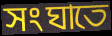
সংঘাতে